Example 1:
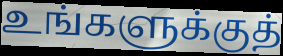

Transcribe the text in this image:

உங்களுக்குத்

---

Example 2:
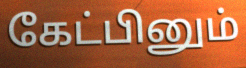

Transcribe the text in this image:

கேட்பினும்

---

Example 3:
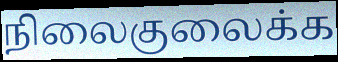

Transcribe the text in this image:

நிலைகுலைக்க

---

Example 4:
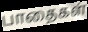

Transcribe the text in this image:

பாதைகள்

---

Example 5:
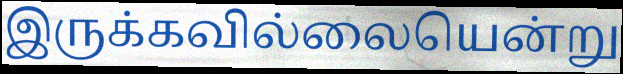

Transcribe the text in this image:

இருக்கவில்லையென்று